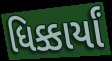
ધિક્કાર્યાં